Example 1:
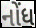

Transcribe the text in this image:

નોંધ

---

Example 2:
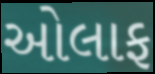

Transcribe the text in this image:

ઓલાફ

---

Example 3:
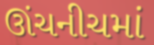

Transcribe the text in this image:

ઊંચનીચમાં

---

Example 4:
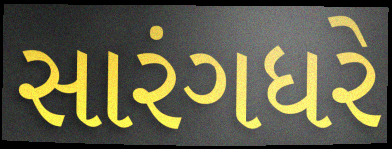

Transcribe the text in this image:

સારંગધરે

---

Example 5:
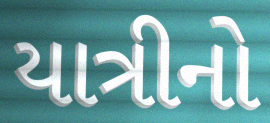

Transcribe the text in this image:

યાત્રીનો